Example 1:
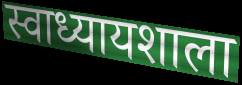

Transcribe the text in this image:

स्वाध्यायशाला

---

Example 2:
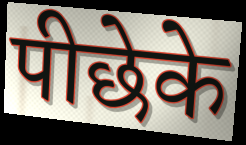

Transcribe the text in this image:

पीछेके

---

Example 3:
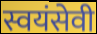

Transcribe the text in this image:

स्वयंसेवी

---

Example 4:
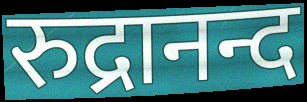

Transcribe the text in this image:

रुद्रानन्द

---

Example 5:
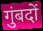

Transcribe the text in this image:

गुंबदों